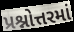
પ્રશ્નોત્તરમાં